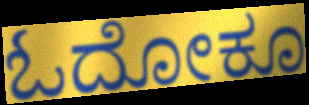
ಓದೋಕೂ